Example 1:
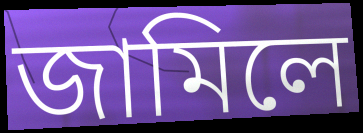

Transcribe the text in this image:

জামিলে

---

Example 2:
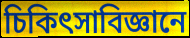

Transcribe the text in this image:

চিকিৎসাবিজ্ঞানে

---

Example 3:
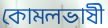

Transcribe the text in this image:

কোমলভাষী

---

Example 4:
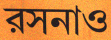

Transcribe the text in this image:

রসনাও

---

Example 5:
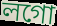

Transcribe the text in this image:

লগো